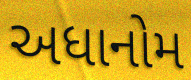
અધાનોમ